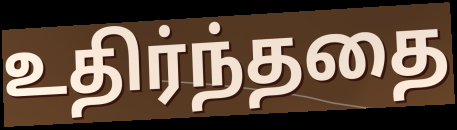
உதிர்ந்ததை